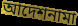
আদেশনামা